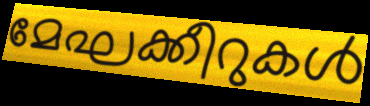
മേഘക്കീറുകൾ